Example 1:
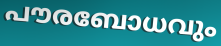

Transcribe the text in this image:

പൗരബോധവും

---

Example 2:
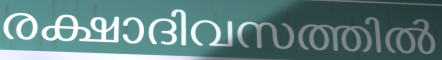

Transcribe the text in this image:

രക്ഷാദിവസത്തിൽ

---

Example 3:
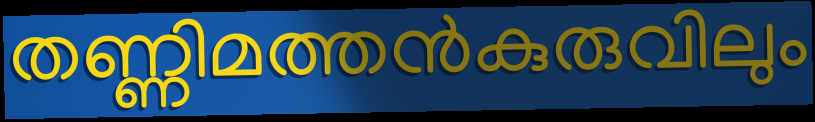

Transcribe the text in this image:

തണ്ണിമത്തൻകുരുവിലും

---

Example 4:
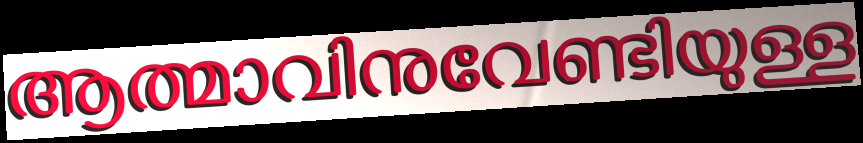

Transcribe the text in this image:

ആത്മാവിനുവേണ്ടിയുള്ള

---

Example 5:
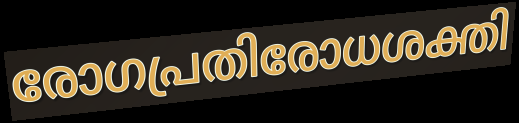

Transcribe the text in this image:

രോഗപ്രതിരോധശക്തി